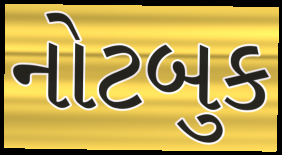
નોટબુક